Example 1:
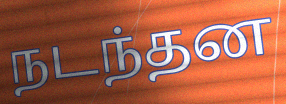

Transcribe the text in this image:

நடந்தன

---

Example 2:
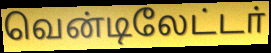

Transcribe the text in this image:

வென்டிலேட்டர்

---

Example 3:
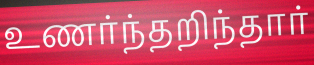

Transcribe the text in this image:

உணர்ந்தறிந்தார்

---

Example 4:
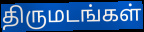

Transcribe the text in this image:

திருமடங்கள்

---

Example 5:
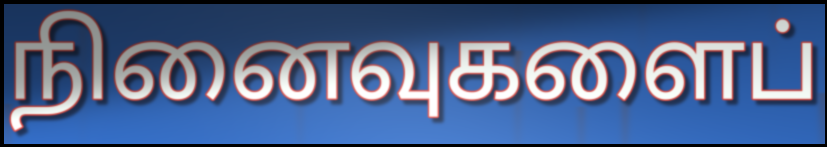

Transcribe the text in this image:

நினைவுகளைப்